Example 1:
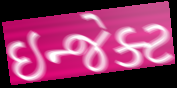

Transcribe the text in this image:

ઇન્જેક્ટ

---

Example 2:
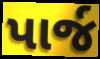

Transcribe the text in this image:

પાર્જ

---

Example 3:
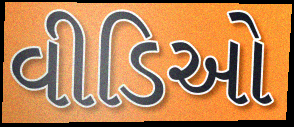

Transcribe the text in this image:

વીડિઓ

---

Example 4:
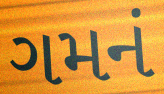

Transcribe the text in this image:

ગમનં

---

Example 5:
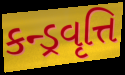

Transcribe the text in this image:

કન્ડ્રવૃત્તિ